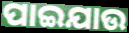
ପାଇଯାଉ